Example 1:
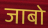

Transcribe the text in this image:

जाबो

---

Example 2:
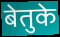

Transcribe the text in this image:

बेतुके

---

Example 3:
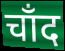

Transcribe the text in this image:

चाँद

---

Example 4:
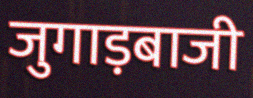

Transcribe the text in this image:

जुगाड़बाजी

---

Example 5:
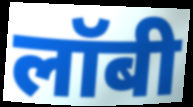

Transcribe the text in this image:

लॉबी